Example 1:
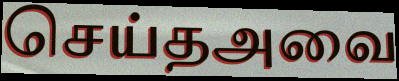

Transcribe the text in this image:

செய்தஅவை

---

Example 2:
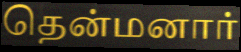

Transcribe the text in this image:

தென்மனார்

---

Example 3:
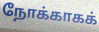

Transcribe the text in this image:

நோக்காகக்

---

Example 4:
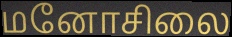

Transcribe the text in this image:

மனோசிலை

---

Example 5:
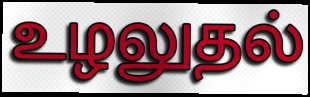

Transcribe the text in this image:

உழலுதல்